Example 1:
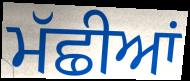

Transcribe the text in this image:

ਮੱਛੀਆਂ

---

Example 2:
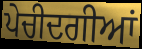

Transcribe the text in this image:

ਪੇਚੀਦਗੀਆਂ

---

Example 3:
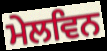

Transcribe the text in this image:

ਮੇਲਵਿਨ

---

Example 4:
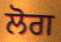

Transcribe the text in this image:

ਲੋਗ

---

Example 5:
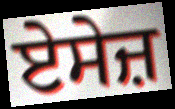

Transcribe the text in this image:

ਏਸੇਜ਼